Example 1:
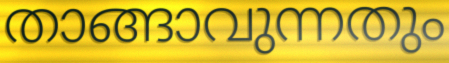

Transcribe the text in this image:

താങ്ങാവുന്നതും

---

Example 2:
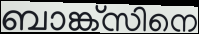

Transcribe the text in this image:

ബാങ്ക്സിനെ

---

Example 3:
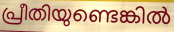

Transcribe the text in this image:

പ്രീതിയുണ്ടെങ്കിൽ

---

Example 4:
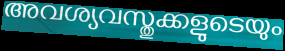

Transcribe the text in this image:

അവശ്യവസ്തുക്കളുടെയും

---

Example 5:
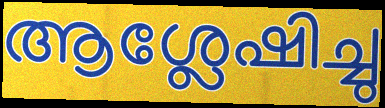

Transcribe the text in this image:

ആശ്ലേഷിച്ചു